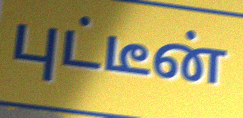
புட்டீன்